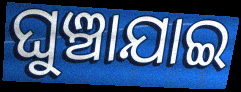
ଘୁଞ୍ଚାଯାଇ